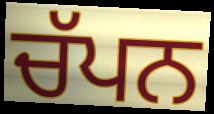
ਚੱਪਨ